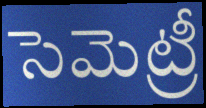
సెమెట్రీ